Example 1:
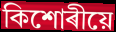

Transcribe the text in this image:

কিশোৰীয়ে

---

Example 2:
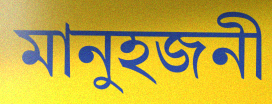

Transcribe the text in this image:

মানুহজনী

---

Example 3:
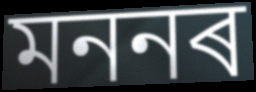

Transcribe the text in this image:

মননৰ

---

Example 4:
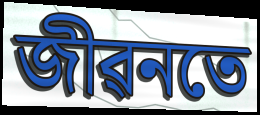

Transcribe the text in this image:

জীৱনতে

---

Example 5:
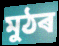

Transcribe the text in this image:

মুঠৰ